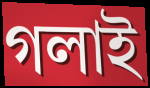
গলাই